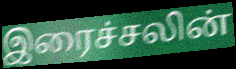
இரைச்சலின்